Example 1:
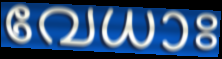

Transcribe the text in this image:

വേധാഃ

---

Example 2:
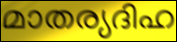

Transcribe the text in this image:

മാതര്യദിഹ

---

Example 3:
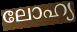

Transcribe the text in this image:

ലോഹ്യ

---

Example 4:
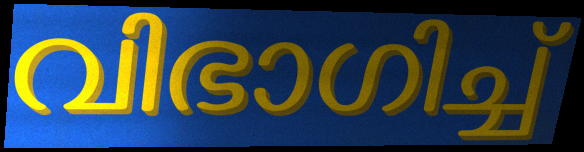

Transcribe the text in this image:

വിഭാഗിച്ച്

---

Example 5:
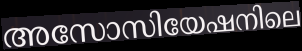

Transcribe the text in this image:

അസോസിയേഷനിലെ